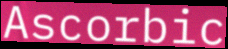
Ascorbic